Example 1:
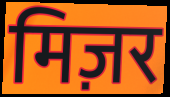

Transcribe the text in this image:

मिज़र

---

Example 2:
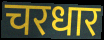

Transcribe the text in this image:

चरधार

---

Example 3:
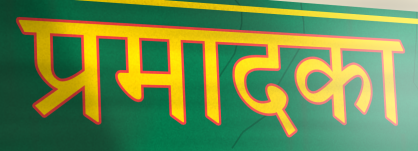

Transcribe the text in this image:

प्रमादका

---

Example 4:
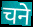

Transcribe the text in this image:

चने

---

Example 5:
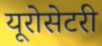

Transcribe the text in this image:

यूरोसेटरी